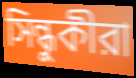
সিন্ধুকীরা